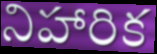
నిహారిక